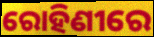
ରୋହିଣୀରେ